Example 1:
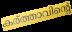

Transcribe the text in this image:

കര്ത്താവിന്റെ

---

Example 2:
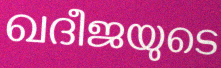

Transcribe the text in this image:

ഖദീജയുടെ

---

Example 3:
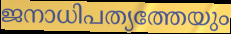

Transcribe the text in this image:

ജനാധിപത്യത്തേയും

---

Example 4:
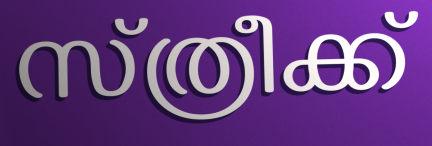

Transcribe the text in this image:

സ്‌ത്രീക്ക്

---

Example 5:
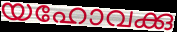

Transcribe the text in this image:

യഹോവക്കു